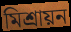
মিশ্রায়ন